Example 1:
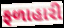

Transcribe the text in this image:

ફળાહારી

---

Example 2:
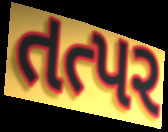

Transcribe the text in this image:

તત્પર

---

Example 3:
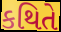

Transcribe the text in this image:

કથિતે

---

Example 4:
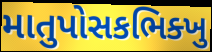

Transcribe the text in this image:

માતુપોસકભિક્ખુ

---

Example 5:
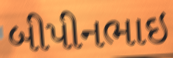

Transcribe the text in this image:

બીપીનભાઇ